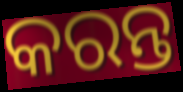
କରନ୍ତ